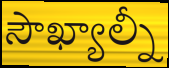
సౌఖ్యాల్నీ